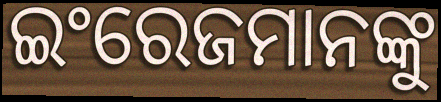
ଇଂରେଜମାନଙ୍କୁ